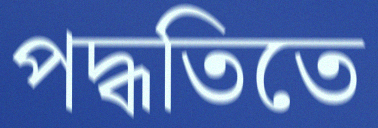
পদ্ধতিতে